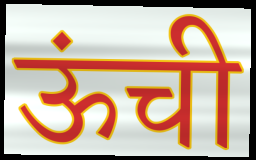
ऊंची